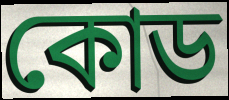
কোড